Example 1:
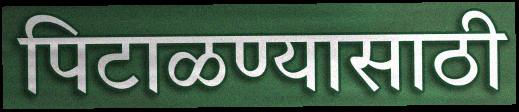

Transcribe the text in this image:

पिटाळण्यासाठी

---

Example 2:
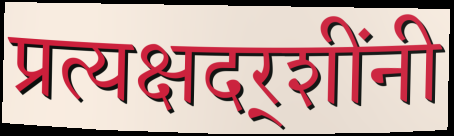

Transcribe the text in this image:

प्रत्यक्षदर्शींनी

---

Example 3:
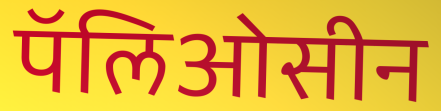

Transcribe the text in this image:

पॅलिओसीन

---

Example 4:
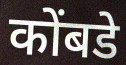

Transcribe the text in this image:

कोंबडे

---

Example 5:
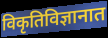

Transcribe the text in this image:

विकृतिविज्ञानात